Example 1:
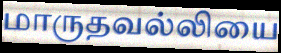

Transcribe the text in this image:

மாருதவல்லியை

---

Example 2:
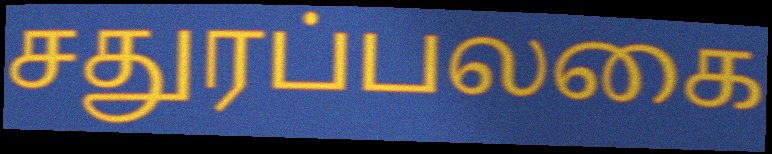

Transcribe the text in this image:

சதுரப்பலகை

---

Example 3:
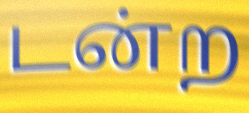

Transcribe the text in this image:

டன்ற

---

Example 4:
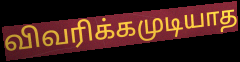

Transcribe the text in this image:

விவரிக்கமுடியாத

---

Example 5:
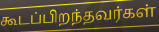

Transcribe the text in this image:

கூடப்பிறந்தவர்கள்